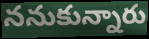
ననుకున్నారు